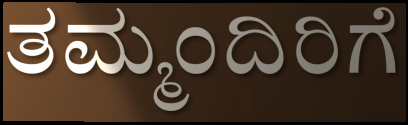
ತಮ್ಮಂದಿರಿಗೆ